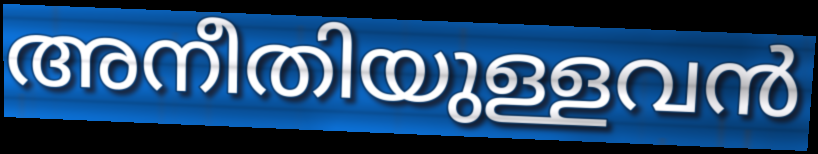
അനീതിയുള്ളവൻ